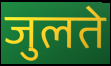
जुलते